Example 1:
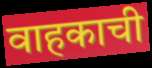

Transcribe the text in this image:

वाहकाची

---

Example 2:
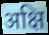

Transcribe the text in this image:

अक्षि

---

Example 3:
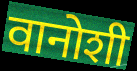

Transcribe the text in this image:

वानोशी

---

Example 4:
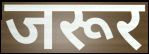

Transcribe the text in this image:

जरूर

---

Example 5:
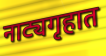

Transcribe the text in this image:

नाट्यगृहात